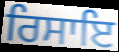
ਰਿਸਾਇ